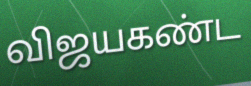
விஜயகண்ட